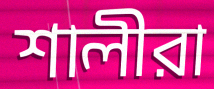
শালীরা